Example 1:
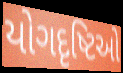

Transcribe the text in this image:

યોગદૃષ્ટિઓ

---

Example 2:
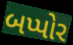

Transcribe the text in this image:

બપ્પોર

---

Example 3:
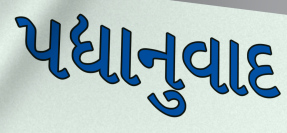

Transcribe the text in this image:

પદ્યાનુવાદ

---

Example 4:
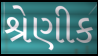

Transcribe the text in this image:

શ્રેણીક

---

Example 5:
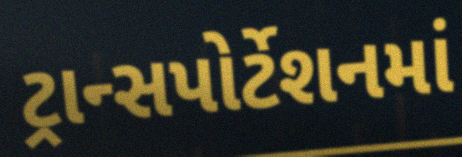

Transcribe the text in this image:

ટ્રાન્સપોર્ટેશનમાં